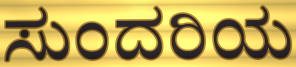
ಸುಂದರಿಯ